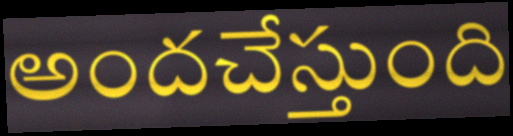
అందచేస్తుంది